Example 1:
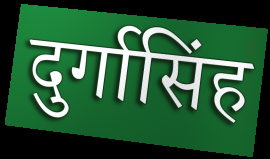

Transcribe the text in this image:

दुर्गासिंह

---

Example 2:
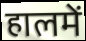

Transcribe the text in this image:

हालमें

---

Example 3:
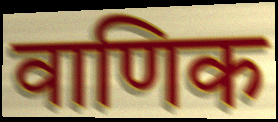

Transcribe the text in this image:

वाणिक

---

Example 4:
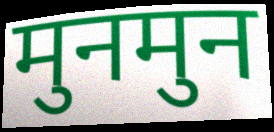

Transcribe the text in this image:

मुनमुन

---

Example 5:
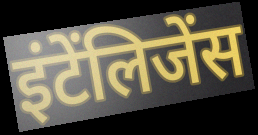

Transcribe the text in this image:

इंटेंलिजेंस